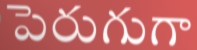
పెరుగుగా